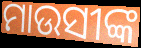
ମାଉସୀଙ୍କ